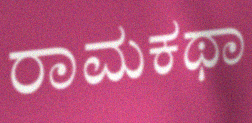
ರಾಮಕಥಾ